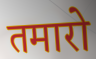
तमारो